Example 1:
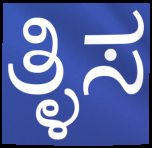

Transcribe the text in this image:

ತ್ಳಿಸ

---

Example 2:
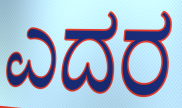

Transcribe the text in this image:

ಎದರ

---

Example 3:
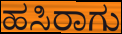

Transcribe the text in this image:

ಹಸಿರಾಗು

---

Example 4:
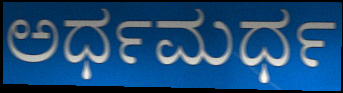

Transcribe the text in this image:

ಅರ್ಧಮರ್ಧ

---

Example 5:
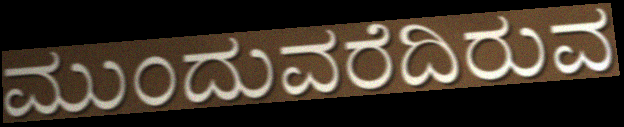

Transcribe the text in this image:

ಮುಂದುವರೆದಿರುವ